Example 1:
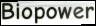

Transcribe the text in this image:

Biopower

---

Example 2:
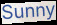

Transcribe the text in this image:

Sunny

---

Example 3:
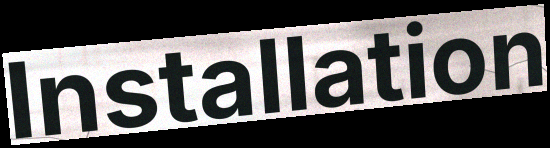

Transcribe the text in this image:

Installation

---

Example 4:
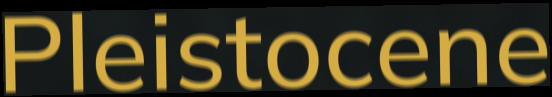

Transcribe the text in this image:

Pleistocene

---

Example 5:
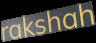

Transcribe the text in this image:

rakshah